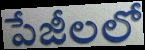
పేజీలలో